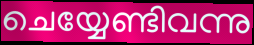
ചെയ്യേണ്ടിവന്നു